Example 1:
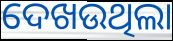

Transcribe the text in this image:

ଦେଖଉଥିଲା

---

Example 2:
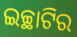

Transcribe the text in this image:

ଇଚ୍ଛାଟିର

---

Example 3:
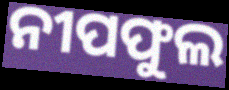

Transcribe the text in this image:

ନୀପଫୁଲ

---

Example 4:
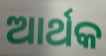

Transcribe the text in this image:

ଆର୍ଥକ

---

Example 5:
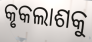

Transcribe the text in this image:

କୃକଲାଶକୁ